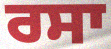
ਰਸਾ